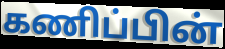
கணிப்பின்